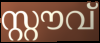
സ്റ്റൗവ്